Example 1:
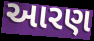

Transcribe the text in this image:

આરણ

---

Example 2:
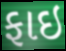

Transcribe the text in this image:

ફાઇ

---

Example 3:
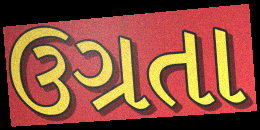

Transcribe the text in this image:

ઉગ્રતા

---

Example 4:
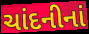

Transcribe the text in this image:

ચાંદનીનાં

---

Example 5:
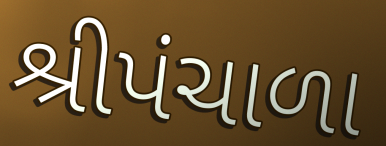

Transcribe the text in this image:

શ્રીપંચાળા